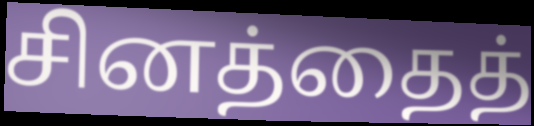
சினத்தைத்